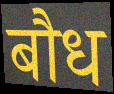
बौध